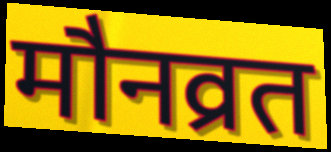
मौनव्रत